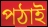
পঠাই